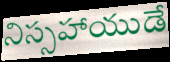
నిస్సహాయుడే